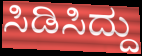
ಸಿಡಿಸಿದ್ದು